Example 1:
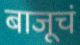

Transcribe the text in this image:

बाजूचं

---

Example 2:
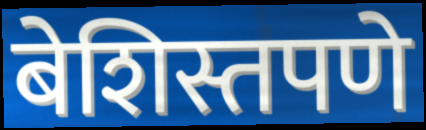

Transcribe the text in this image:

बेशिस्तपणे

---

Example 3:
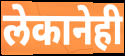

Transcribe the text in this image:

लेकानेही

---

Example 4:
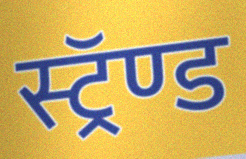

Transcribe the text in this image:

स्ट्रॅण्ड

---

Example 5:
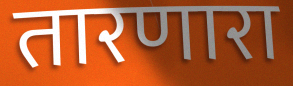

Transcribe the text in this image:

तारणारा